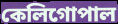
কেলিগোপাল